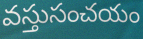
వస్తుసంచయం